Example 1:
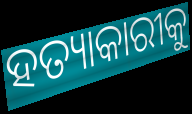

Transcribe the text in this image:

ହତ୍ୟାକାରୀକୁ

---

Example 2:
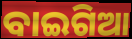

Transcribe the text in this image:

ବାଇଗିଆ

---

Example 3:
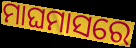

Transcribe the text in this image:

ମାଘମାସରେ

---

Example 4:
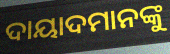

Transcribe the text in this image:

ଦାୟାଦମାନଙ୍କୁ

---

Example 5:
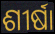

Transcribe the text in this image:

ଶୀର୍ଷା